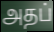
அதப்